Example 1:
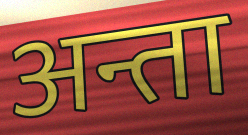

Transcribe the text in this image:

अन्ता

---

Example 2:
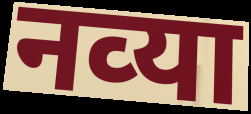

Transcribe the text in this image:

नव्‍या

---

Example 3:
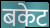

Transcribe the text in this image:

बकेट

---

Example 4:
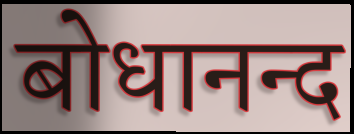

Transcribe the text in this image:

बोधानन्द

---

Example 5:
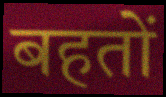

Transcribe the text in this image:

बहतों